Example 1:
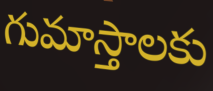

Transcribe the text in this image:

గుమాస్తాలకు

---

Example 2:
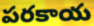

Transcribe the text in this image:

పరకాయ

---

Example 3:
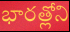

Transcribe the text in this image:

భారత్లోని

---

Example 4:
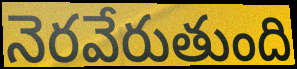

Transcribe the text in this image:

నెరవేరుతుంది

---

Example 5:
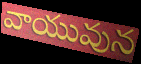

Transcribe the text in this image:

వాయువున